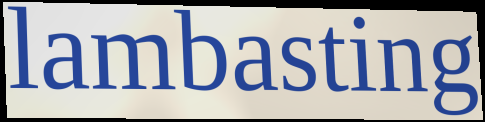
lambasting